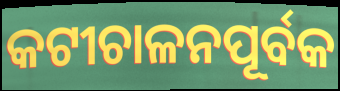
କଟୀଚାଳନପୂର୍ବକ